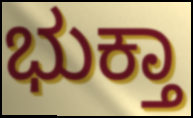
ಭುಕ್ತಾ